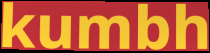
kumbh